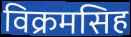
विक्रमसिह